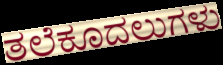
ತಲೆಕೂದಲುಗಳು